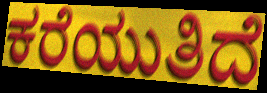
ಕರೆಯುತಿದೆ